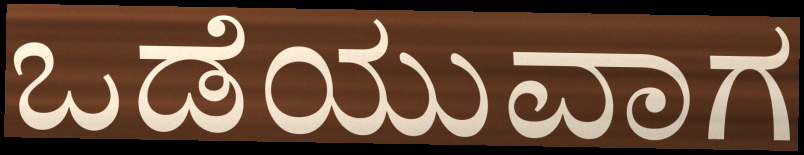
ಒಡೆಯುವಾಗ